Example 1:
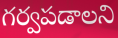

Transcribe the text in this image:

గర్వపడాలని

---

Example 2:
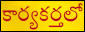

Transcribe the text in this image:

కార్యకర్తలో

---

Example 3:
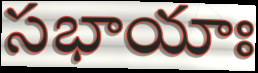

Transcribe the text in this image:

సభాయాః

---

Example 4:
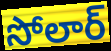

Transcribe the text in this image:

సోలార్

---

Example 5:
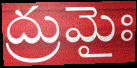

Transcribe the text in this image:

ద్రుమైః